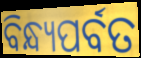
ବିନ୍ଧ୍ୟପର୍ବତ